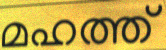
മഹത്ത്